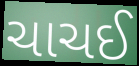
ચાચઈ